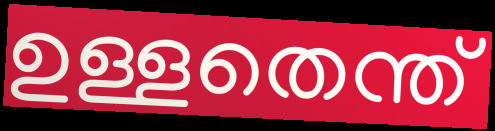
ഉള്ളതെന്ത്